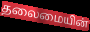
தலைமையின்